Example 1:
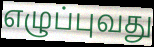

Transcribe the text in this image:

எழுப்புவது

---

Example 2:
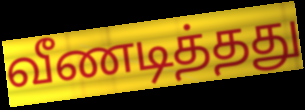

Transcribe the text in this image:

வீணடித்தது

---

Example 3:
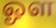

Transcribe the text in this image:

ஓள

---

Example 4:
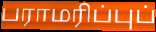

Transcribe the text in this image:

பராமரிப்புப்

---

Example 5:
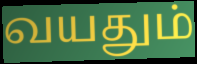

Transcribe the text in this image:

வயதும்